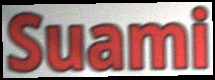
Suami